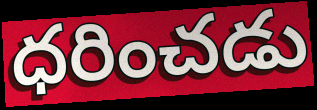
ధరించడు